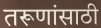
तरूणांसाठी